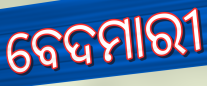
ବେଦମାରୀ